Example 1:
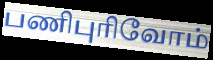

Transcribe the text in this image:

பணிபுரிவோம்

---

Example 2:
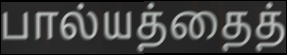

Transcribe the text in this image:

பால்யத்தைத்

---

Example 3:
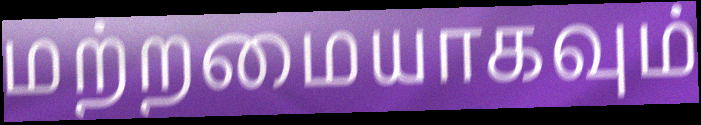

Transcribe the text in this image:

மற்றமையாகவும்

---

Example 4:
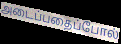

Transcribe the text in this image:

அடைப்பதைப்போல்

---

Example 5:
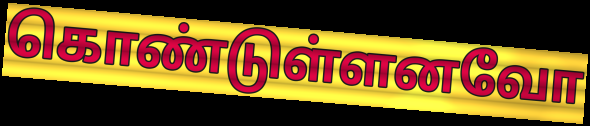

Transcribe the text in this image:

கொண்டுள்ளனவோ